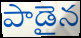
పాడైన